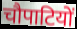
चौपाटियों